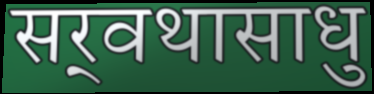
सर्वथासाधु